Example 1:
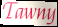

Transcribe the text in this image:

Tawny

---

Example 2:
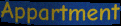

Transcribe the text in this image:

Appartment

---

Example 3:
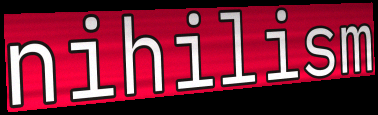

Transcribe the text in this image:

nihilism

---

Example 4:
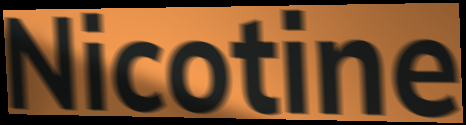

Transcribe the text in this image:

Nicotine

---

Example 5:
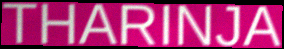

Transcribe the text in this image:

THARINJA